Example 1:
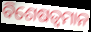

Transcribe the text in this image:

ବିଶେଷତ୍ଵମାନ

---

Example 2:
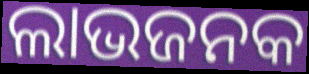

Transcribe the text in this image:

ଲାଭଜନକ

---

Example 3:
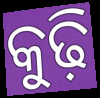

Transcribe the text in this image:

କୁଢ଼ି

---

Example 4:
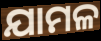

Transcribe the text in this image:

ଯାମଳ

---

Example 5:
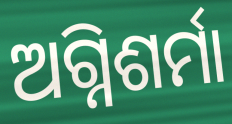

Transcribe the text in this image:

ଅଗ୍ନିଶର୍ମା